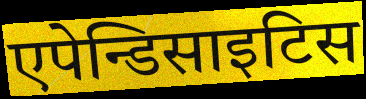
एपेन्डिसाइटिस